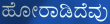
ಹೋರಾಡಿದೆವು